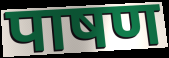
पाषण